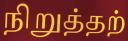
நிறுத்தற்